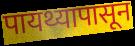
पायथ्यापासून